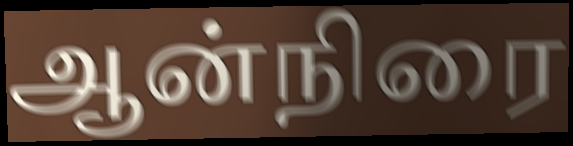
ஆன்நிரை